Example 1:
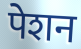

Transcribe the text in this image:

पेशन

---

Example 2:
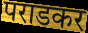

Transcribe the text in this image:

पराडकर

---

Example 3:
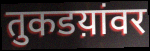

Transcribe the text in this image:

तुकडय़ांवर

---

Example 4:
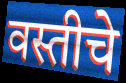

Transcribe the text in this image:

वस्तीचे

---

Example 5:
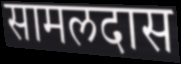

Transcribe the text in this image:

सामलदास